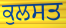
ਕੁਲਸਤ